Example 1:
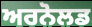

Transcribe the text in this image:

ਅਰਨੋਲਡ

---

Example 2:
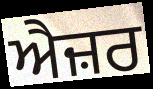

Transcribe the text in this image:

ਐਜ਼ਰ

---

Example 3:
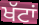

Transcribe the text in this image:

ਖੱਟਾਂ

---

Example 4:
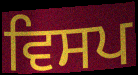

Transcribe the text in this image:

ਵਿਸਪ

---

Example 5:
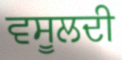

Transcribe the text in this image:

ਵਸੂਲਦੀ